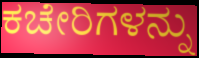
ಕಚೇರಿಗಳನ್ನು